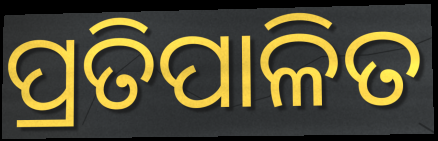
ପ୍ରତିପାଳିତ